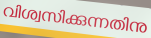
വിശ്വസിക്കുന്നതിനു